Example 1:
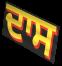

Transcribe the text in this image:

ਦਾਸ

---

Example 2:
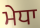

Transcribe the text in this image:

ਮੇਧਾ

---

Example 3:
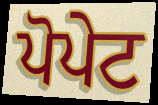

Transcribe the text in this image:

ਪੋਪੇਟ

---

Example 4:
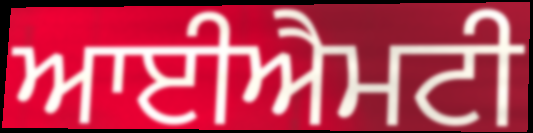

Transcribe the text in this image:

ਆਈਐਮਟੀ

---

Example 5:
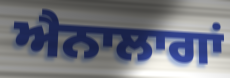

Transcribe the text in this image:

ਐਨਾਲਾਗਾਂ